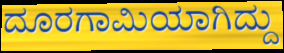
ದೂರಗಾಮಿಯಾಗಿದ್ದು